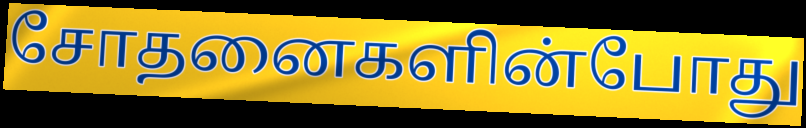
சோதனைகளின்போது